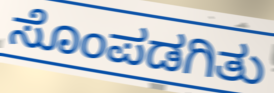
ಸೊಂಪಡಗಿತು